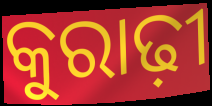
କୁରାଢ଼ୀ